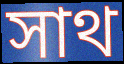
সাথ